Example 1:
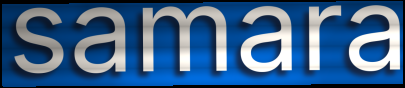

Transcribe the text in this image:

samara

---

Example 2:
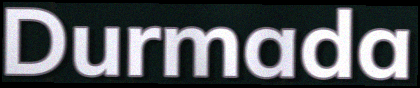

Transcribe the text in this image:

Durmada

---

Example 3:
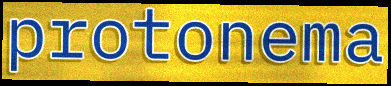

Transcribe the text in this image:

protonema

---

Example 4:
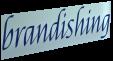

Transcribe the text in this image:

brandishing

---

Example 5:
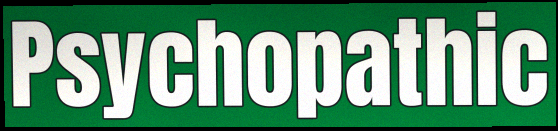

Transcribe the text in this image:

Psychopathic